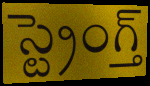
స్ట్రెంగ్త్